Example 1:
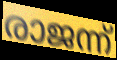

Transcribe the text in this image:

രാജന്ന്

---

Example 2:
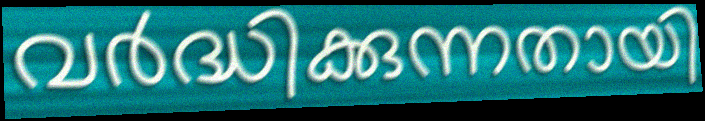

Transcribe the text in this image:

വർദ്ധിക്കുന്നതായി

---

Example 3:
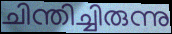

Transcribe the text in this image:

ചിന്തിച്ചിരുന്നു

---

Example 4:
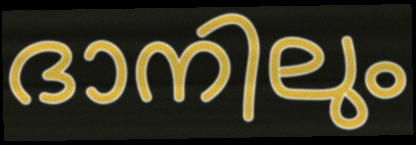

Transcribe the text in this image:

ദാനിലും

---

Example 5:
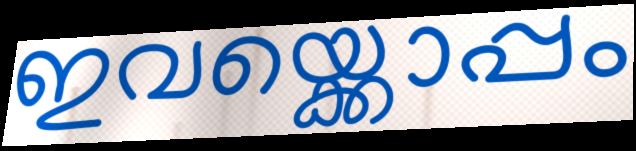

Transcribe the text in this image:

ഇവയ്ക്കൊപ്പം